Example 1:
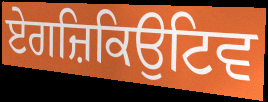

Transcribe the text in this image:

ਏਗਜ਼ਿਕਿਉਟਿਵ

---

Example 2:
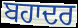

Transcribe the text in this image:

ਬਹਾਦਰ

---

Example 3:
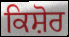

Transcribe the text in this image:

ਕਿਸ਼ੋਰ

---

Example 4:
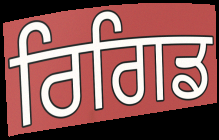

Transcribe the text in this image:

ਰਿਗਿਡ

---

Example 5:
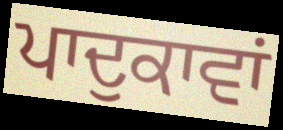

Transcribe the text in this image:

ਪਾਦੁਕਾਵਾਂ